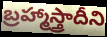
బ్రహ్మాస్త్రాదీని